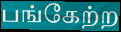
பங்கேற்ற